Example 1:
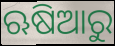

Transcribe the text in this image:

ଋଷିଆରୁ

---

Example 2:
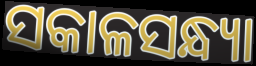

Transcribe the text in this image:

ସକାଳସନ୍ଧ୍ୟା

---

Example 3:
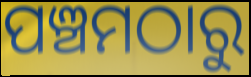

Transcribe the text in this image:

ପଞ୍ଚମଠାରୁ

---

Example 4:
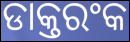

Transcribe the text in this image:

ଡାକ୍ତରଂକ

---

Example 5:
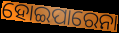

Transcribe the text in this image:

ହୋଇପାରେନା